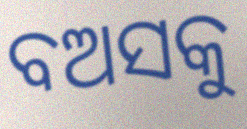
ବଅସକୁ